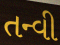
તન્વી